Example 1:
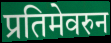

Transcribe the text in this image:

प्रतिमेवरुन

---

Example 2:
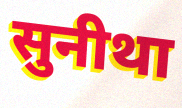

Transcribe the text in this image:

सुनीथा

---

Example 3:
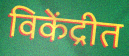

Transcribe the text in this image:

विकेंद्रीत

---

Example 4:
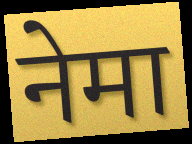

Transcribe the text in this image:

नेमा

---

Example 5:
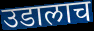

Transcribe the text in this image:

उडालाच